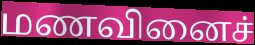
மணவினைச்